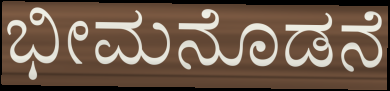
ಭೀಮನೊಡನೆ